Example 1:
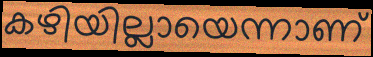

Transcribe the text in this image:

കഴിയില്ലായെന്നാണ്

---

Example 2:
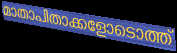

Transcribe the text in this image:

മാതാപിതാക്കളോടൊത്ത്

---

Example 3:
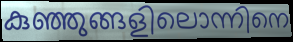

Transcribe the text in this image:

കുഞ്ഞുങ്ങളിലൊന്നിനെ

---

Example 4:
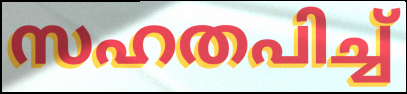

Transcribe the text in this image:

സഹതപിച്ച്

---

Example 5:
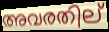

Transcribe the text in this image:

അവരതില്